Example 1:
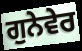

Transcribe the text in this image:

ਗੁਨੇਵੇਰ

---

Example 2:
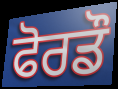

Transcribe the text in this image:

ਫੋਰਡੌ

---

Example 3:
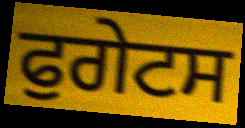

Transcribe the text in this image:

ਫੁਗੇਟਸ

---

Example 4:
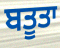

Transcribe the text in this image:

ਬਤੂਤਾ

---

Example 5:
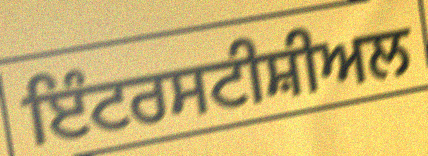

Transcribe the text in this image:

ਇੰਟਰਸਟੀਸ਼ੀਅਲ